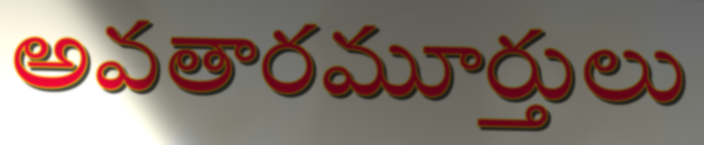
అవతారమూర్తులు